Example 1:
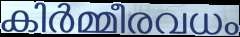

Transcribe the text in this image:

കിർമ്മീരവധം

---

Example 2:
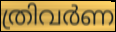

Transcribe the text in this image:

ത്രിവർണ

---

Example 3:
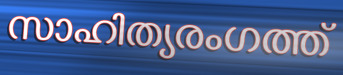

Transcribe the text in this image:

സാഹിത്യരംഗത്ത്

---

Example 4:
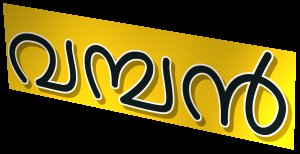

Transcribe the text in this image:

വമ്പൻ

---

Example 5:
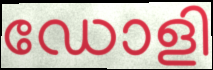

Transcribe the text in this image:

ഡോളി